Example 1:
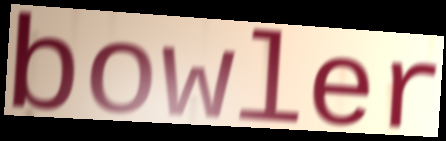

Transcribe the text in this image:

bowler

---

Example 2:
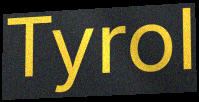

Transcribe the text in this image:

Tyrol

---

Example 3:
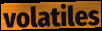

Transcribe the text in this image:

volatiles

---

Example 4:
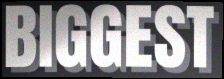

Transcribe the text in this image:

BIGGEST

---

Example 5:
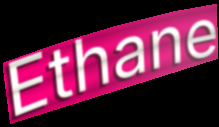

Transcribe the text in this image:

Ethane